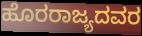
ಹೊರರಾಜ್ಯದವರ